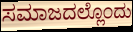
ಸಮಾಜದಲ್ಲೊಂದು